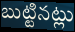
బుట్టినట్లు